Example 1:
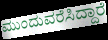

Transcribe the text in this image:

ಮುಂದುವರೆಸಿದ್ದಾರೆ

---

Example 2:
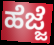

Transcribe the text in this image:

ಹೆಜ್ಜೆ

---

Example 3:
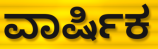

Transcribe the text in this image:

ವಾರ್ಷಿಕ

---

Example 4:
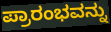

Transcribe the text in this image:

ಪ್ರಾರಂಭವನ್ನು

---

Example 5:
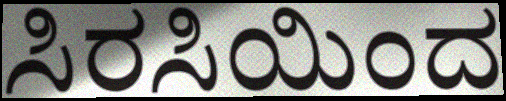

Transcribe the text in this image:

ಸಿರಸಿಯಿಂದ